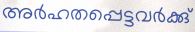
അർഹതപ്പെട്ടവർക്കു്